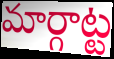
మార్గాట్ట